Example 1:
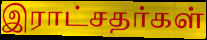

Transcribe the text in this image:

இராட்சதர்கள்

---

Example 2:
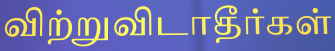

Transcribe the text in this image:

விற்றுவிடாதீர்கள்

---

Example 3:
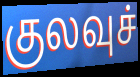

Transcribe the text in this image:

குலவுச்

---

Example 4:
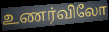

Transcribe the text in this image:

உணர்விலோ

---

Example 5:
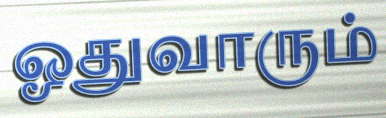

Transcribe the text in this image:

ஓதுவாரும்